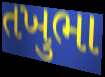
તખુભા